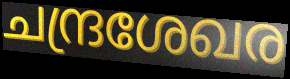
ചന്ദ്രശേഖര